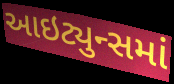
આઇટ્યુન્સમાં